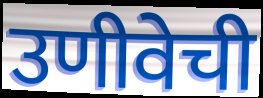
उणीवेची